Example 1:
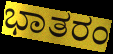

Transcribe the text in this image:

ಭಾತರಂ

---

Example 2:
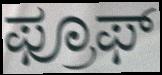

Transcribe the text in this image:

ಫ್ರೂಫ್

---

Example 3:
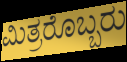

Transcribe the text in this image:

ಮಿತ್ರರೊಬ್ಬರು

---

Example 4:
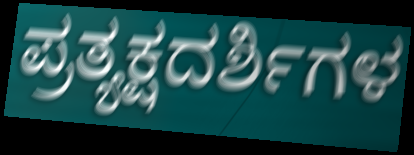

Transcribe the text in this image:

ಪ್ರತ್ಯಕ್ಷದರ್ಶಿಗಳ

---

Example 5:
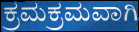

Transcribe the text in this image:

ಕ್ರಮಕ್ರಮವಾಗಿ